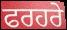
ਫਰਹਰੇ